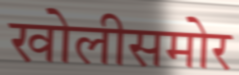
खोलीसमोर